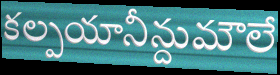
కల్పయానీన్దుమౌలే